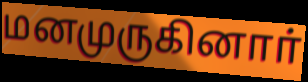
மனமுருகினார்